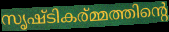
സൃഷ്ടികര്മ്മത്തിന്റെ